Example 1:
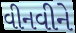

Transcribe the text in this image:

વીનવીને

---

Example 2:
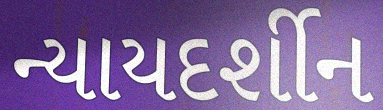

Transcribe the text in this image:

ન્યાયદર્શીન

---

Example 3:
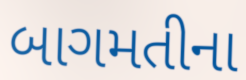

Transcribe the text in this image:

બાગમતીના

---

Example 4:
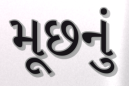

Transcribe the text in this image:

મૂછનું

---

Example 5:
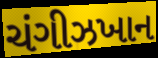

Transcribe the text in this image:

ચંગીઝખાન